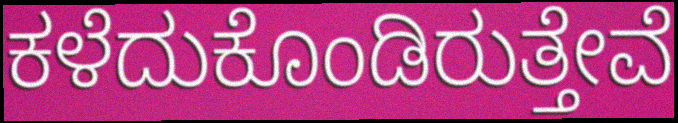
ಕಳೆದುಕೊಂಡಿರುತ್ತೇವೆ